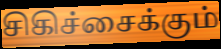
சிகிச்சைக்கும்